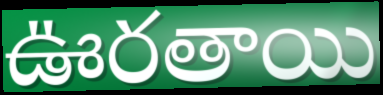
ఊరతాయి